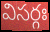
విసర్గః